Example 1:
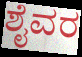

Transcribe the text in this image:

ಶೈವರ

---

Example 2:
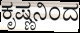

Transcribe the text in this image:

ಕೃಷ್ಣನಿಂದ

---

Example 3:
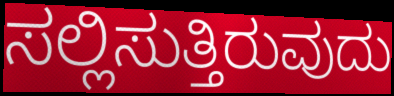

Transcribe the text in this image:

ಸಲ್ಲಿಸುತ್ತಿರುವುದು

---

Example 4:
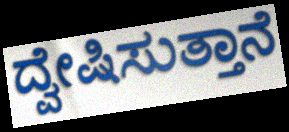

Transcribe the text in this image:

ದ್ವೇಷಿಸುತ್ತಾನೆ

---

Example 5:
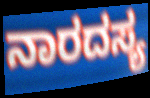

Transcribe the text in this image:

ನಾರದಸ್ಯ